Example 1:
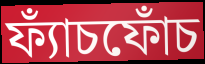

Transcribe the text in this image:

ফ্যাঁচফোঁচ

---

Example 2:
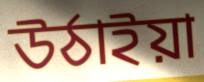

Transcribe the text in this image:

উঠাইয়া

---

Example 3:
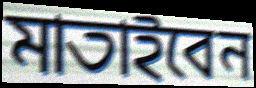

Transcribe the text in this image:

মাতাইবেন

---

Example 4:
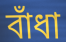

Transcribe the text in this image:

বাঁধা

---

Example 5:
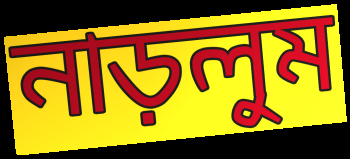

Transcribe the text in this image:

নাড়লুম